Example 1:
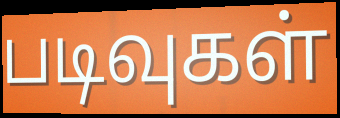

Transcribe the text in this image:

படிவுகள்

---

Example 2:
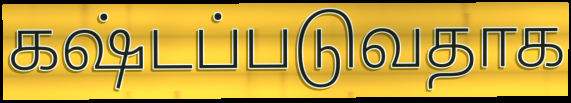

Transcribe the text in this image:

கஷ்டப்படுவதாக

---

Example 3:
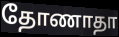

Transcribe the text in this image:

தோணாதா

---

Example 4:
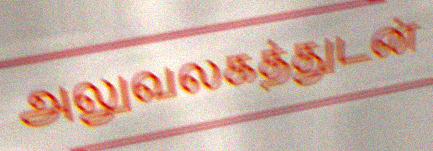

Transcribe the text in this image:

அலுவலகத்துடன்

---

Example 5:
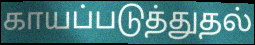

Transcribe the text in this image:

காயப்படுத்துதல்